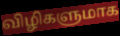
விழிகளுமாக